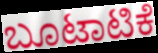
ಬೂಟಾಟಿಕೆ